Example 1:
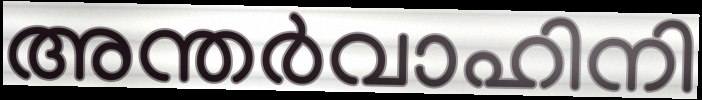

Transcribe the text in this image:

അന്തർവാഹിനി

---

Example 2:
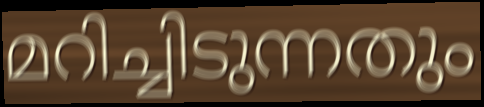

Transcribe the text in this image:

മറിച്ചിടുന്നതും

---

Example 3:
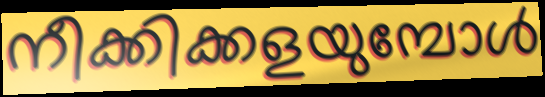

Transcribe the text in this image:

നീക്കിക്കളയുമ്പോൾ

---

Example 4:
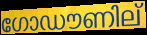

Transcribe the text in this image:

ഗോഡൗണില്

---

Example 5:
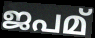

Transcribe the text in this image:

ജപമ്